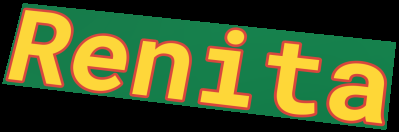
Renita